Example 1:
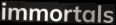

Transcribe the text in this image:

immortals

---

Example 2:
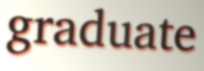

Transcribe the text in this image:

graduate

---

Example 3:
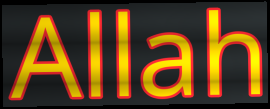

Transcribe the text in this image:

Allah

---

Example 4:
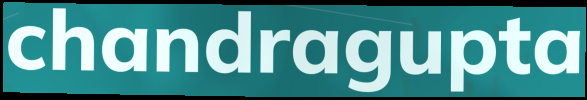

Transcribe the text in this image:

chandragupta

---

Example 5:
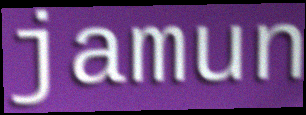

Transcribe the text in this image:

jamun